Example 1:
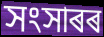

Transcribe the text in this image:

সংসাৰৰ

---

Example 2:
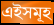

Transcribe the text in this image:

এইসমূহ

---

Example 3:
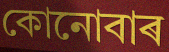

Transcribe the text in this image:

কোনোবাৰ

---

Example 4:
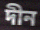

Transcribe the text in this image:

দীন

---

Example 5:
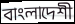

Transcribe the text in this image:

বাংলাদেশী